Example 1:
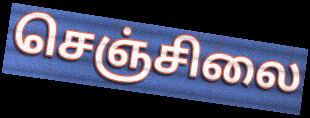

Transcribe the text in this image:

செஞ்சிலை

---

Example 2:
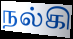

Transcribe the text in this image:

நல்கி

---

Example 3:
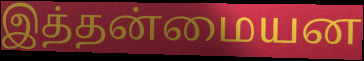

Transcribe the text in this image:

இத்தன்மையன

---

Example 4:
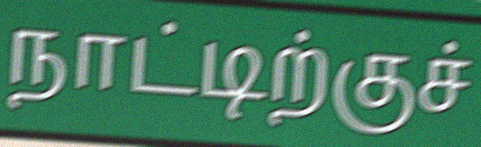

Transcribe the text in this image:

நாட்டிற்குச்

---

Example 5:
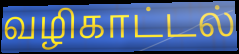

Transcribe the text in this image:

வழிகாட்டல்